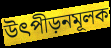
উৎপীড়নমূলক